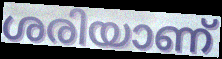
ശരിയാണ്